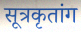
सूत्रकृतांग